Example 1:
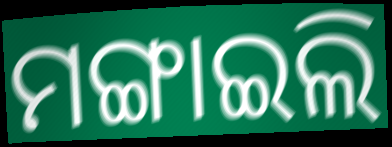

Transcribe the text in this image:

ମଙ୍ଗାଇଲି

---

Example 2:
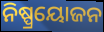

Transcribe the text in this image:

ନିଷ୍ପ୍ରୟୋଜନ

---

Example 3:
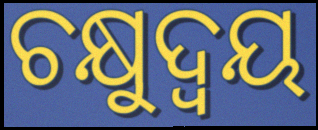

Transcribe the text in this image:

ଚକ୍ଷୁଦ୍ୱୟ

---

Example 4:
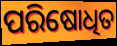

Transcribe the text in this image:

ପରିଷୋଧିତ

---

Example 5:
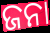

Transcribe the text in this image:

ଜନା